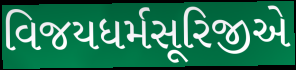
વિજયધર્મસૂરિજીએ